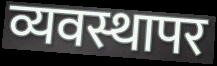
व्यवस्थापर